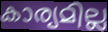
കാര്യമില്ല